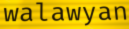
walawyan